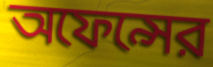
অফেন্সের